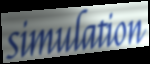
simulation